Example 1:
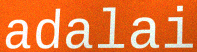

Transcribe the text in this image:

adalai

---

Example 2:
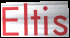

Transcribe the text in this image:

Eltis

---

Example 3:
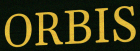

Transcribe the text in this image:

ORBIS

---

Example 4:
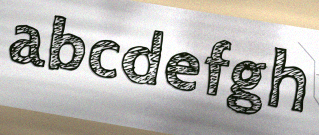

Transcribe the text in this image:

abcdefgh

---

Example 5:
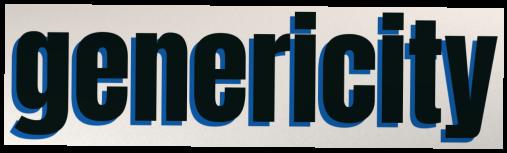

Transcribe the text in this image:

genericity